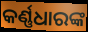
କର୍ଣ୍ଣଧାରଙ୍କ